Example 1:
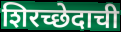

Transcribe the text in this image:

शिरच्छेदाची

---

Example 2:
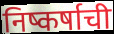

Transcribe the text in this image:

निष्कर्षाची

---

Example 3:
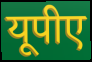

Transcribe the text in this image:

यूपीए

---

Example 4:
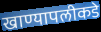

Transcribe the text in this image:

खाण्यापलीकडे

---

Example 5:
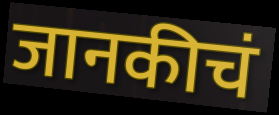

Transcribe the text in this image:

जानकीचं